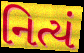
નિત્યં